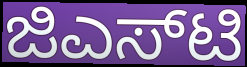
ಜಿಎಸ್‌ಟಿ